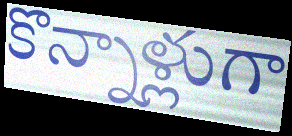
కొన్నాళ్లుగా